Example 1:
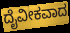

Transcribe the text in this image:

ದೈವೀಕವಾದ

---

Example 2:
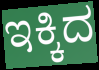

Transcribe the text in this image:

ಇಕ್ಕಿದ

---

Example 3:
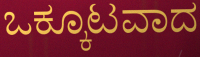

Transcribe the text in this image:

ಒಕ್ಕೂಟವಾದ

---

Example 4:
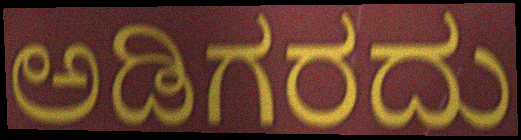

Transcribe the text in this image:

ಅಡಿಗರದು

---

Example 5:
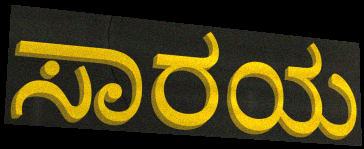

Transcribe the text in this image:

ಸಾರಯ